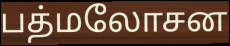
பத்மலோசன